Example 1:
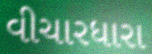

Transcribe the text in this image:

વીચારધારા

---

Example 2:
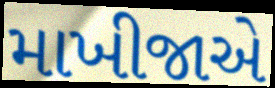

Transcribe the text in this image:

માખીજાએ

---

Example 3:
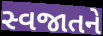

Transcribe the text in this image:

સ્વજાતને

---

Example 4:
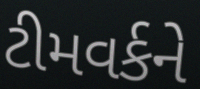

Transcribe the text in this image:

ટીમવર્કને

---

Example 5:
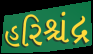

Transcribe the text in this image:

હરિશ્ચંદ્ર